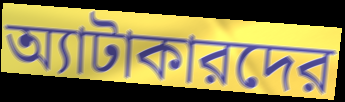
অ্যাটাকারদের